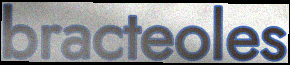
bracteoles